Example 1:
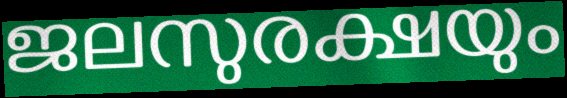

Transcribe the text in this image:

ജലസുരക്ഷയും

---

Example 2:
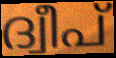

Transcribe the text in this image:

ദ്വീപ്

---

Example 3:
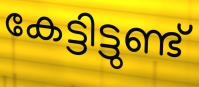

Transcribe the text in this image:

കേട്ടിട്ടുണ്ട്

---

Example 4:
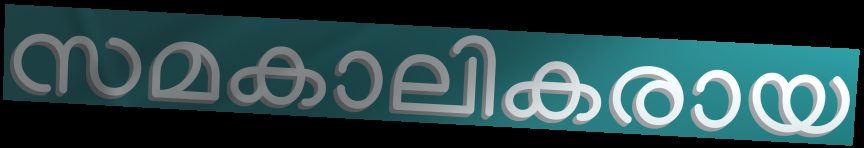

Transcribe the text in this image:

സമകാലികരായ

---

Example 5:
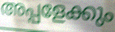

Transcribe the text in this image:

അപ്പളേക്കും